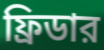
ফ্রিডার